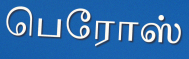
பெரோஸ்